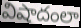
విషాదంలా